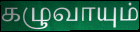
கழுவாயும்